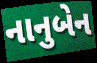
નાનુબેન